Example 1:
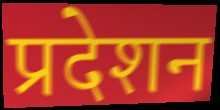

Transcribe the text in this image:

प्रदेशन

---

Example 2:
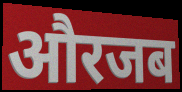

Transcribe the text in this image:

औरजब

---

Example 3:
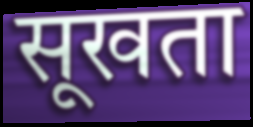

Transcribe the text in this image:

सूखता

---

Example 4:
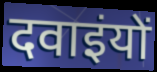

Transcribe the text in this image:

दवाइंयों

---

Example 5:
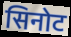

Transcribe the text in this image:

सिनोट